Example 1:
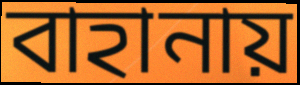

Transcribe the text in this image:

বাহানায়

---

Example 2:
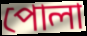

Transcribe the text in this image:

পোলা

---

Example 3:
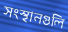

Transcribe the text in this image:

সংস্থানগুলি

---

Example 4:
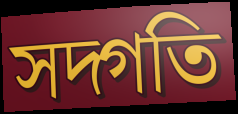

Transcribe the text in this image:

সদ্গতি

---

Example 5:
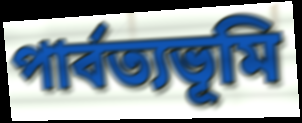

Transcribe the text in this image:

পার্বত্যভূমি